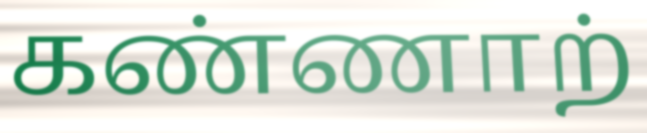
கண்ணாற்